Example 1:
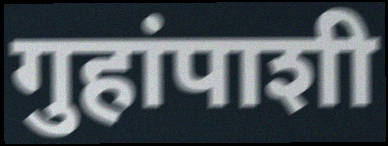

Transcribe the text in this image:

गुहांपाशी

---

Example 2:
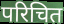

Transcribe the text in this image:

परिचित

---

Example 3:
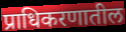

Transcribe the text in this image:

प्राधिकरणातील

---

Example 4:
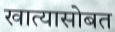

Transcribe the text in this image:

खात्यासोबत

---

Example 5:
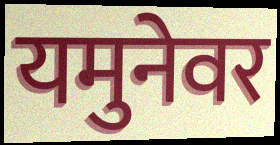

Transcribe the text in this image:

यमुनेवर